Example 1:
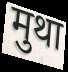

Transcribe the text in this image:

मुथा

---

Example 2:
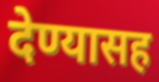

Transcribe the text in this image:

देण्यासह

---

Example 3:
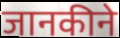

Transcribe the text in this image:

जानकीने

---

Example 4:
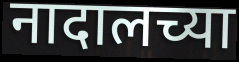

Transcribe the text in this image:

नादालच्या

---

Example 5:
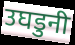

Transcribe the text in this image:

उघडुनी